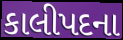
કાલીપદના